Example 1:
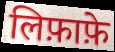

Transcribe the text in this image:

लिफ़ाफ़े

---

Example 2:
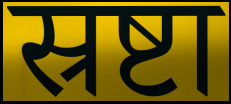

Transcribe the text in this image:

स्रष्टा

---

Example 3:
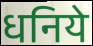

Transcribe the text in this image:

धनिये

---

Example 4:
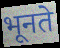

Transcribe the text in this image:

भूनते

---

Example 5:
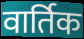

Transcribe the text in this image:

वार्तिक